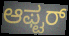
ಆಫ್ಟರ್